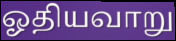
ஓதியவாறு